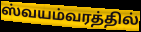
ஸ்வயம்வரத்தில்